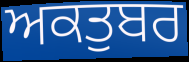
ਅਕਤੁਬਰ